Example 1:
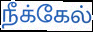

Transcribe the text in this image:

நீக்கேல்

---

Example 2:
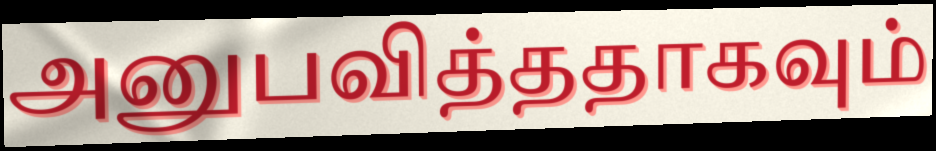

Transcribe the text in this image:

அனுபவித்ததாகவும்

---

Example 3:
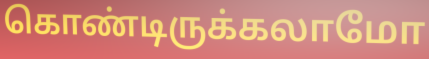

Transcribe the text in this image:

கொண்டிருக்கலாமோ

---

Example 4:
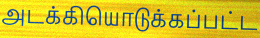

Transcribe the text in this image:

அடக்கியொடுக்கப்பட்ட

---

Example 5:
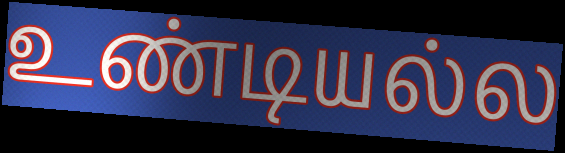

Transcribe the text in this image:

உண்டியல்ல